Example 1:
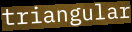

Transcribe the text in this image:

triangular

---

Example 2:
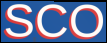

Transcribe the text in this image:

SCO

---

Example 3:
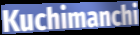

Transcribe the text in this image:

Kuchimanchi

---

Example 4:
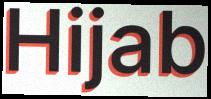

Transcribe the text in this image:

Hijab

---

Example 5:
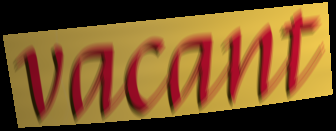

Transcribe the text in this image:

vacant